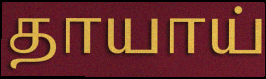
தாயாய்